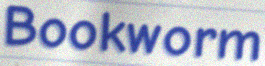
Bookworm